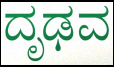
ದೃಢವ